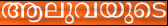
ആലുവയുടെ